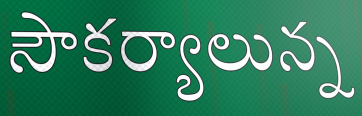
సౌకర్యాలున్న